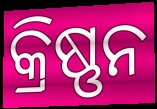
କ୍ରିଷ୍ଣନ